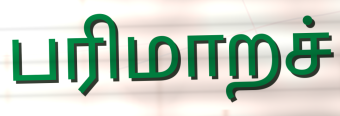
பரிமாறச்